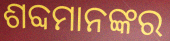
ଶବ୍ଦମାନଙ୍କର